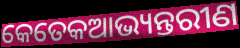
କେତେକଆଭ୍ୟନ୍ତରୀଣ